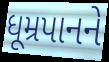
ધૂમ્રપાનને